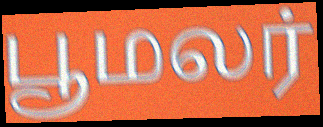
பூமலர்